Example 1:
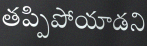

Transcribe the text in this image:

తప్పిపోయాడని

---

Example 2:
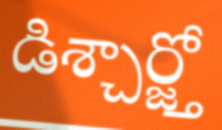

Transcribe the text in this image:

డిశ్చార్జ్తో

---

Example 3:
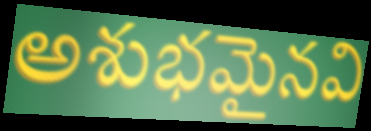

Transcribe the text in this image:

అశుభమైనవి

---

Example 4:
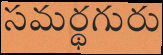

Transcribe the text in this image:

సమర్థగురు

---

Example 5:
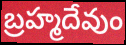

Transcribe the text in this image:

బ్రహ్మదేవుం